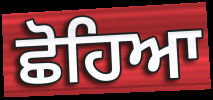
ਛੋਹਿਆ